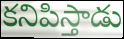
కనిపిస్తాడు